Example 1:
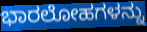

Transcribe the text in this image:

ಭಾರಲೋಹಗಳನ್ನು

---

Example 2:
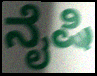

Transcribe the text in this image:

ನೈಷಿ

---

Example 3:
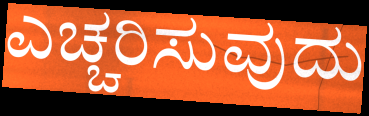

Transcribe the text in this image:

ಎಚ್ಚರಿಸುವುದು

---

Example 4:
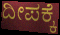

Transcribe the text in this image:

ದೀಪಕ್ಕೆ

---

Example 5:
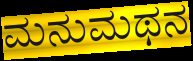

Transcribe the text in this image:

ಮನುಮಥನ